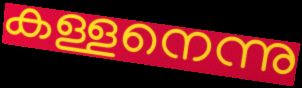
കള്ളനെന്നു